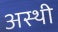
अस्थी